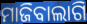
ମାଜିବାଲାଗି